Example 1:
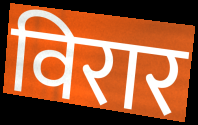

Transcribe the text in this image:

विरार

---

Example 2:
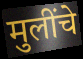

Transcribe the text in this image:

मुलींचे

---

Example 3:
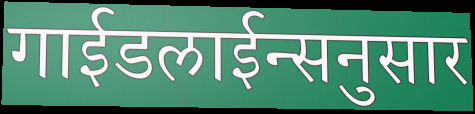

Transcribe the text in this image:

गाईडलाईन्सनुसार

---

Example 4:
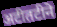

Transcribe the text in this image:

अटीतटीने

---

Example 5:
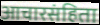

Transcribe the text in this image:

आचारसंहिता